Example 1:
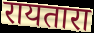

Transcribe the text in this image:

रायतारा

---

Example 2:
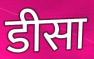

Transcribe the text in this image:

डीसा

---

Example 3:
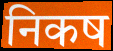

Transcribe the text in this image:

निकष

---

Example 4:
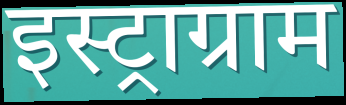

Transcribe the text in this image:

इस्ट्राग्राम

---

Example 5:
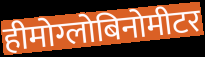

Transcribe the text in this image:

हीमोग्लोबिनोमीटर